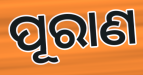
ପୂରାଣ